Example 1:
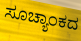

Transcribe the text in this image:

ಸೂಚ್ಯಾಂಕದ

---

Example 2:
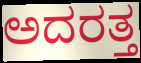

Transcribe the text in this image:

ಅದರತ್ತ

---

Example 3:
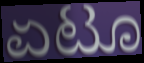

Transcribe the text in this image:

ಏಟೂ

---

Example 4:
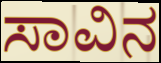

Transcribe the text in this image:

ಸಾವಿನ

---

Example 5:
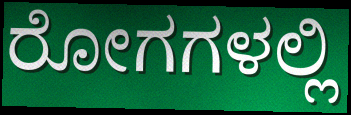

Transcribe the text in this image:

ರೋಗಗಳಲ್ಲಿ